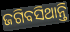
ଜଗିବସିଥାନ୍ତି